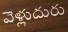
వెళ్లుదురు